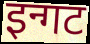
इन्गट